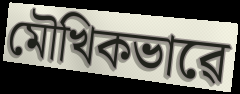
মৌখিকভাৱে